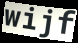
wijf